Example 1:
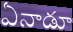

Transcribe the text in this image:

ఏనాడూ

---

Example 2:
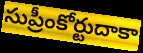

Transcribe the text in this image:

సుప్రీంకోర్టుదాకా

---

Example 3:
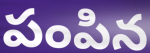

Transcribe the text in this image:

పంపిన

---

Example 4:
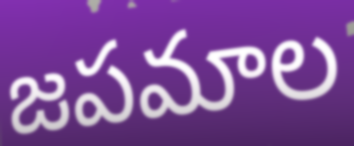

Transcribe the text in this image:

జపమాల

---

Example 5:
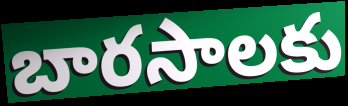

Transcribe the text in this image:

బారసాలకు